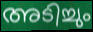
അടിച്ചും